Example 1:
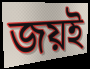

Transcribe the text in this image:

জয়ই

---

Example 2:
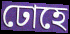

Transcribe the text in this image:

ঢোহে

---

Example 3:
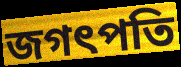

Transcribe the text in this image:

জগৎপতি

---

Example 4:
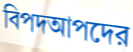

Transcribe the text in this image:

বিপদআপদের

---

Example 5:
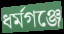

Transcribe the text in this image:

ধর্মগঞ্জে